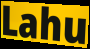
Lahu